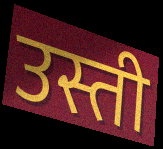
उस्ती